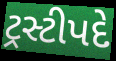
ટ્રસ્ટીપદે